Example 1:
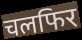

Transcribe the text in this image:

चलफिर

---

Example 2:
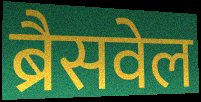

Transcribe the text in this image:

ब्रैसवेल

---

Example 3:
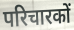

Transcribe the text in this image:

परिचारकों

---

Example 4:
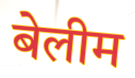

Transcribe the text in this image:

बेलीम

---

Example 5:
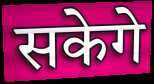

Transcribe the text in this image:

सकेगे